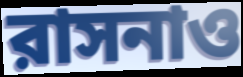
রাসনাও